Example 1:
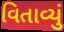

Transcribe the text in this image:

વિતાવ્યું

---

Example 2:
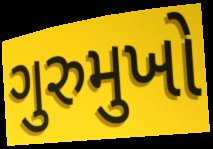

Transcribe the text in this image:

ગુરુમુખો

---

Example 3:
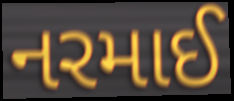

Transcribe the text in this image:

નરમાઈ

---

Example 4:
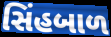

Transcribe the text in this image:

સિંહબાળ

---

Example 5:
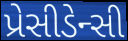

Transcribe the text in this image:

પ્રેસીડેન્સી